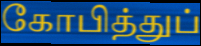
கோபித்துப்